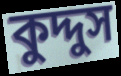
কুদ্দুস